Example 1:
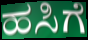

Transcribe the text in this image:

ಹಸಿಗೆ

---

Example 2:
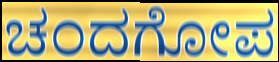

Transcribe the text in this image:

ಚಂದಗೋಪ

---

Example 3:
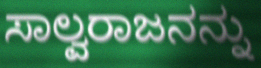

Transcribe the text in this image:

ಸಾಲ್ವರಾಜನನ್ನು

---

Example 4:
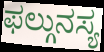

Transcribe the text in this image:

ಫಲ್ಗುನಸ್ಯ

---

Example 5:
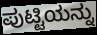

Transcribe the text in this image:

ಪುಟ್ಟಿಯನ್ನು